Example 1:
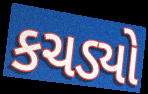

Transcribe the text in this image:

કચડ્યો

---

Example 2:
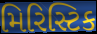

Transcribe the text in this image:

મિરિસ્ટિક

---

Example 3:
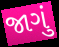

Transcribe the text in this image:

જાગું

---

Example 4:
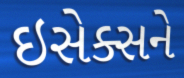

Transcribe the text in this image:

ઇસેક્સને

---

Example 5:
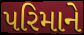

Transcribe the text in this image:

પરિમાને